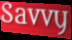
Savvy